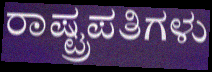
ರಾಷ್ಟ್ರಪತಿಗಳು